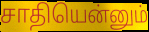
சாதியென்னும்